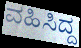
ವಹಿಸಿದ್ದ